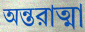
অন্তরাত্মা